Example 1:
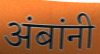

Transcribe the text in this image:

अंबांनी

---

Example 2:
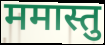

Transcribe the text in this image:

ममास्तु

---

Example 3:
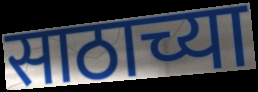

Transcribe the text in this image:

साठाच्या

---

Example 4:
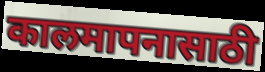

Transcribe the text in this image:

कालमापनासाठी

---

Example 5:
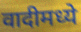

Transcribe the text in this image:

वादीमध्ये